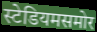
स्टेडियमसमोर